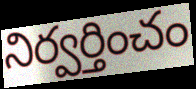
నిర్వర్తించం